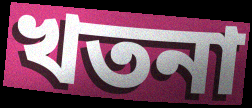
খতনা